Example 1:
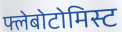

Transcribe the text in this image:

फ्लेबोटोमिस्ट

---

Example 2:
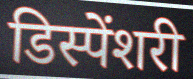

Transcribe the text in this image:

डिस्पेंशरी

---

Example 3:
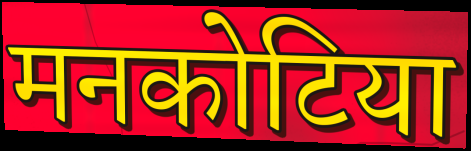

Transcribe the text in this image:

मनकोटिया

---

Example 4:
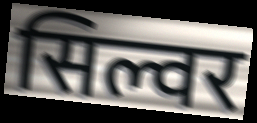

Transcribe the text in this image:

सिल्वर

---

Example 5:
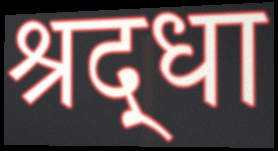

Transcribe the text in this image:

श्रद्धा